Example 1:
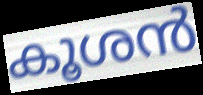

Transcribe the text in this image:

കൂശൻ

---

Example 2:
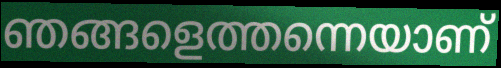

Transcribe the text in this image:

ഞങ്ങളെത്തന്നെയാണ്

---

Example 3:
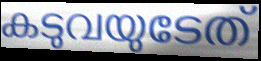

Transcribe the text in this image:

കടുവയുടേത്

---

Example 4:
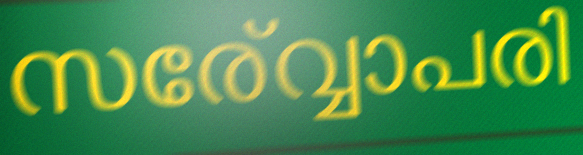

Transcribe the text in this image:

സര്വ്വോപരി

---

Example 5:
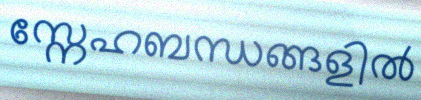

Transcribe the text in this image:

സ്നേഹബന്ധങ്ങളിൽ